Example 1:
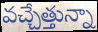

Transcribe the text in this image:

వచ్చేత్తున్నా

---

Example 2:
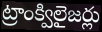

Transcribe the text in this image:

ట్రాంక్విలైజర్లు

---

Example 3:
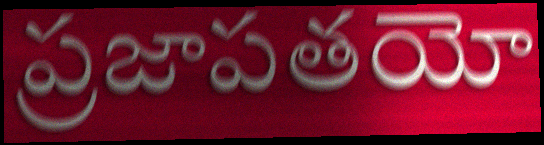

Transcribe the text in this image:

ప్రజాపతయో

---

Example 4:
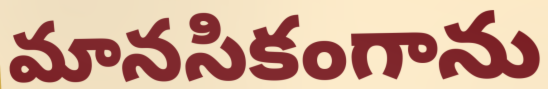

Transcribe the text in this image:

మానసికంగాను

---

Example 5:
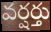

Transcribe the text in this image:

వర్షర్తు